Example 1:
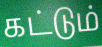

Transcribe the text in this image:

கட்டும்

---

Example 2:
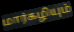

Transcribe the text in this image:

மார்கழியும்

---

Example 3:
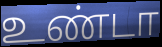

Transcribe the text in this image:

உண்டா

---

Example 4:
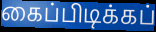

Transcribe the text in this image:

கைப்பிடிக்கப்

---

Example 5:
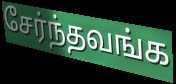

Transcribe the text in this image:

சேர்ந்தவங்க